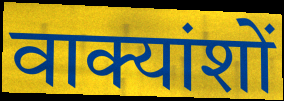
वाक्यांशों